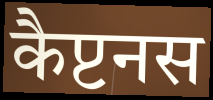
कैप्टनस